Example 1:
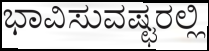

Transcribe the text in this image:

ಭಾವಿಸುವಷ್ಟರಲ್ಲಿ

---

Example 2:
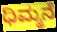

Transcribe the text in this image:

ಧಿಮ್ಮನೆ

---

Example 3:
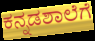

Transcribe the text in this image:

ಕನ್ನಡಶಾಲೆಗೆ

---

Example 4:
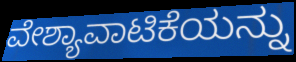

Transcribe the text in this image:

ವೇಶ್ಯಾವಾಟಿಕೆಯನ್ನು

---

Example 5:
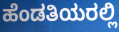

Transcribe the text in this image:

ಹೆಂಡತಿಯರಲ್ಲಿ